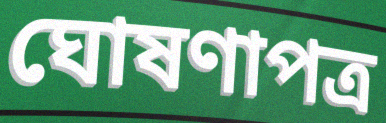
ঘোষণাপত্র